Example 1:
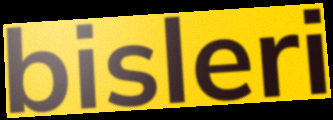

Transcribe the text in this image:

bisleri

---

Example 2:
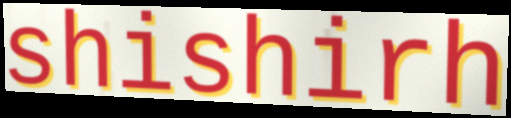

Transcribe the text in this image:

shishirh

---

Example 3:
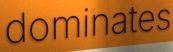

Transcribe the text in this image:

dominates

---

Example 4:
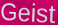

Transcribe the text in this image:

Geist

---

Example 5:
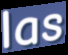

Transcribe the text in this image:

las